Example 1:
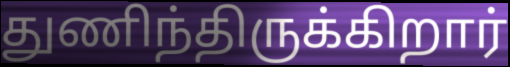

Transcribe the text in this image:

துணிந்திருக்கிறார்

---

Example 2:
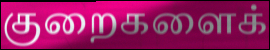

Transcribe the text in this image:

குறைகளைக்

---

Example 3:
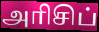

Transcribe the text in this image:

அரிசிப்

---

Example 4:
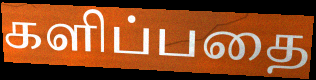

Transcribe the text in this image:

களிப்பதை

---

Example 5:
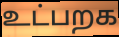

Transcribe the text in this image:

உட்பறக